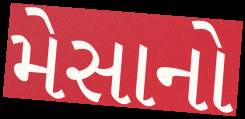
મેસાનો